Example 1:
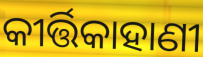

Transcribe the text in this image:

କୀର୍ତ୍ତିକାହାଣୀ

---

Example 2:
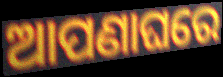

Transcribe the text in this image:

ଆପଣାଘରେ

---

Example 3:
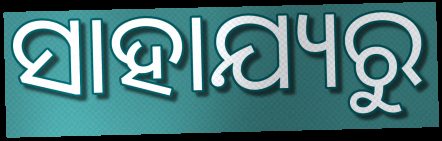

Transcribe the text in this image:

ସାହାଯ୍ୟରୁ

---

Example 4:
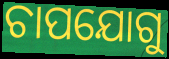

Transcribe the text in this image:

ଚାପଯୋଗୁ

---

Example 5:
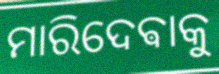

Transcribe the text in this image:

ମାରିଦେଵାକୁ